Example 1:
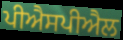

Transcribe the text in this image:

ਪੀਐਸਪੀਐਲ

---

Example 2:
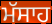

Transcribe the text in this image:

ਮੱਸਾਹ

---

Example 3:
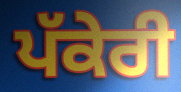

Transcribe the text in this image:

ਪੱਕੇਰੀ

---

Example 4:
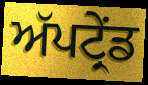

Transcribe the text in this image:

ਅੱਪਟ੍ਰੇਂਡ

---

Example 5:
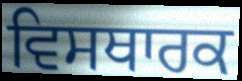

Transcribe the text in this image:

ਵਿਸਥਾਰਕ